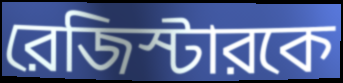
রেজিস্টারকে